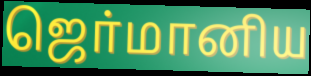
ஜெர்மானிய